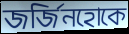
জর্জিনহোকে